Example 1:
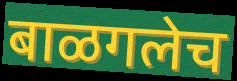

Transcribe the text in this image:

बाळगलेच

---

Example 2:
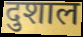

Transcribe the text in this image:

दुशाल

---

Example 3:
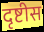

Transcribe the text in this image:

दृष्टीस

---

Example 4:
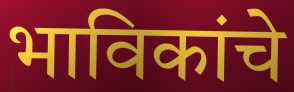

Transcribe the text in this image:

भाविकांचे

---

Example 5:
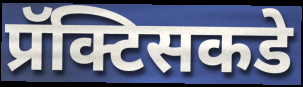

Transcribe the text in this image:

प्रॅक्टिसकडे